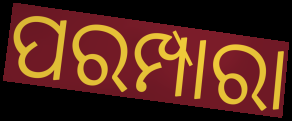
ପରମ୍ପାରା